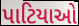
પાટિયાઓ